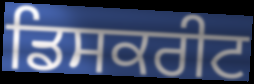
ਡਿਸਕਰੀਟ